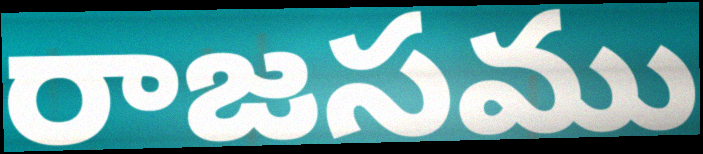
రాజసము